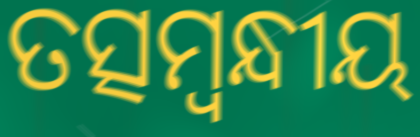
ତତ୍ସମ୍ବନ୍ଧୀୟ